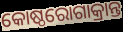
କୋଷ୍ଠରୋଗାକ୍ରାନ୍ତ